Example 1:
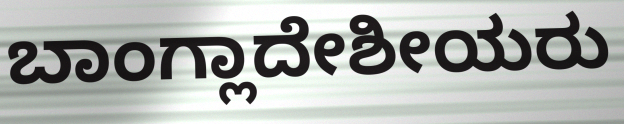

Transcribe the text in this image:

ಬಾಂಗ್ಲಾದೇಶೀಯರು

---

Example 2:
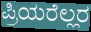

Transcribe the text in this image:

ಪ್ರಿಯರೆಲ್ಲರ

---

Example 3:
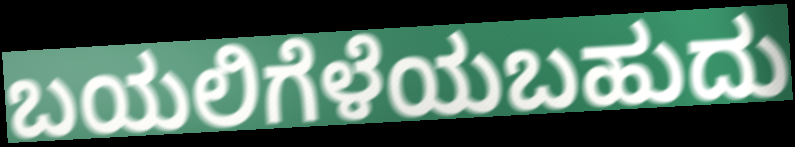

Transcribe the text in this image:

ಬಯಲಿಗೆಳೆಯಬಹುದು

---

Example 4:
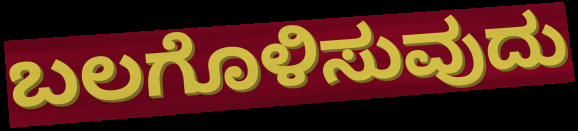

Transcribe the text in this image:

ಬಲಗೊಳಿಸುವುದು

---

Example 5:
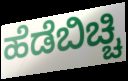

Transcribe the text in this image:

ಹೆಡೆಬಿಚ್ಚಿ